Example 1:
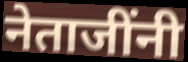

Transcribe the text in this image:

नेताजींनी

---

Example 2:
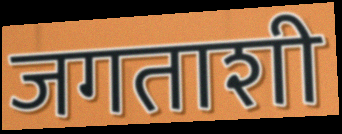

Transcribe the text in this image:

जगताशी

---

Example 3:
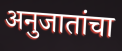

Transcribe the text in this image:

अनुजातांचा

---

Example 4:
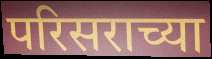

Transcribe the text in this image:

परिसराच्या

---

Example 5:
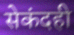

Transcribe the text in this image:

सेकंदही